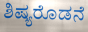
ಶಿಷ್ಯರೊಡನೆ